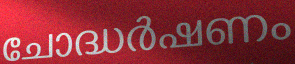
ചോദ്ധർഷണം